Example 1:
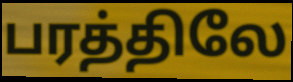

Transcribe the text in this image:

பரத்திலே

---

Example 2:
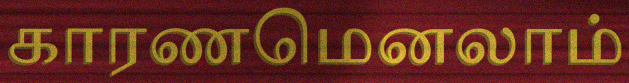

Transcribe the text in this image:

காரணமெனலாம்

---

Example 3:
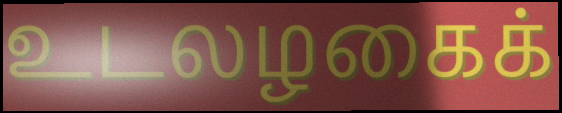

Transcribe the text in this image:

உடலழகைக்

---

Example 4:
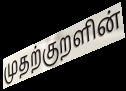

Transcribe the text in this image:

முதற்குறளின்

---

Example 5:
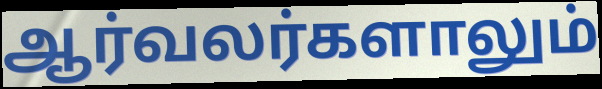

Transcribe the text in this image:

ஆர்வலர்களாலும்